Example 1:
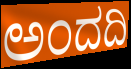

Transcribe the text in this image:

ಅಂದದಿ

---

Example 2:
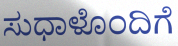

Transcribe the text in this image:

ಸುಧಾಳೊಂದಿಗೆ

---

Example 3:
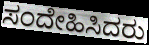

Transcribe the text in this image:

ಸಂದೇಹಿಸಿದರು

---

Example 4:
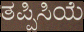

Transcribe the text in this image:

ತಪ್ಪಿಸಿಯೆ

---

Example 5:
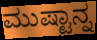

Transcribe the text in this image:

ಮುಷ್ಟಾನ್ನ